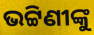
ଭଟ୍ଟିଣୀଙ୍କୁ